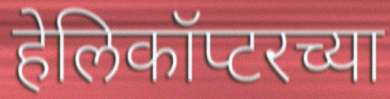
हेलिकॉप्टरच्या